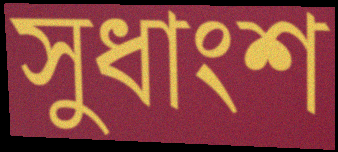
সুধাংশ